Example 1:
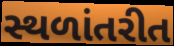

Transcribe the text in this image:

સ્થળાંતરીત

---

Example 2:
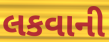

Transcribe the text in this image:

લકવાની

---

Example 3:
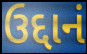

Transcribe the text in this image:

ઉદ્દાનં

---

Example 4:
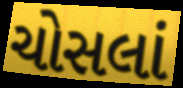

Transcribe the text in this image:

ચોસલાં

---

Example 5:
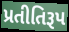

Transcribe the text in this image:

પ્રતીતિરૂપ